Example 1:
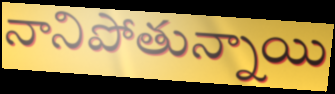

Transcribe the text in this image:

నానిపోతున్నాయి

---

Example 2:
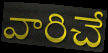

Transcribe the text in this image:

వారిచే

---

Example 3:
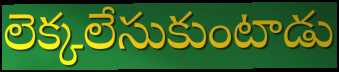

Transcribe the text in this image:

లెక్కలేసుకుంటాడు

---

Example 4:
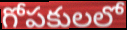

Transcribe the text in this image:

గోపకులలో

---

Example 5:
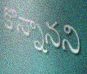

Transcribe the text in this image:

కొన్నానని